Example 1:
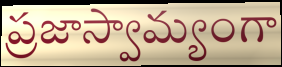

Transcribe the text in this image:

ప్రజాస్వామ్యంగా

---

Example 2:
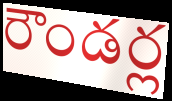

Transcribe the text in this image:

రౌండర్ల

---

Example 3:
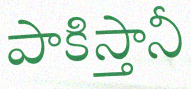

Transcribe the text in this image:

పాకిస్తానీ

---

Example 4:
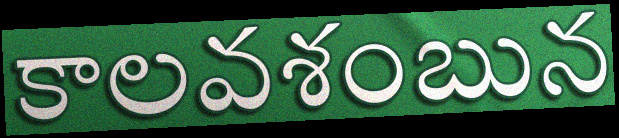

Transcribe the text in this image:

కాలవశంబున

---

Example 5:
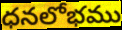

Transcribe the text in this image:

ధనలోభము